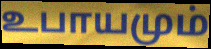
உபாயமும்